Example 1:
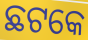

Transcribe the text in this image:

ଛଟକେ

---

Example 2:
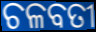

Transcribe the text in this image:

ଚଳବତୀ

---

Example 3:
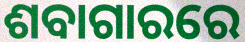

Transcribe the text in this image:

ଶବାଗାରରେ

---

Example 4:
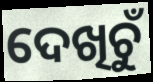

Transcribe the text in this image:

ଦେଖିଚୁଁ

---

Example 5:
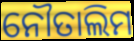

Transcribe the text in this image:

ନୌତାଲିମ